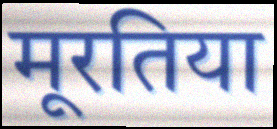
मूरतिया